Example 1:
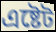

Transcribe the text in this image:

এষ্টেট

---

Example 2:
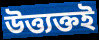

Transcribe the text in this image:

উত্ত্যক্তই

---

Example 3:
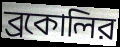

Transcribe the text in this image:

ব্রকোলির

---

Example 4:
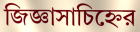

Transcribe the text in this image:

জিজ্ঞাসাচিহ্নের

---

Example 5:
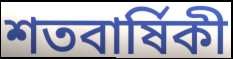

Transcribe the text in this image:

শতবার্ষিকী